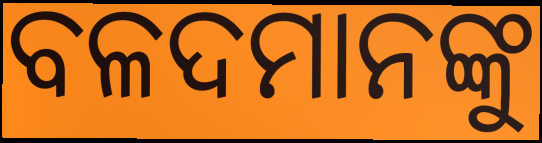
ବଳଦମାନଙ୍କୁ